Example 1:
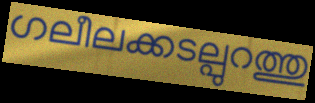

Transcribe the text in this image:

ഗലീലക്കടല്പുറത്തു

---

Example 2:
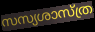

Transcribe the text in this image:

സസ്യശാസ്ത്ര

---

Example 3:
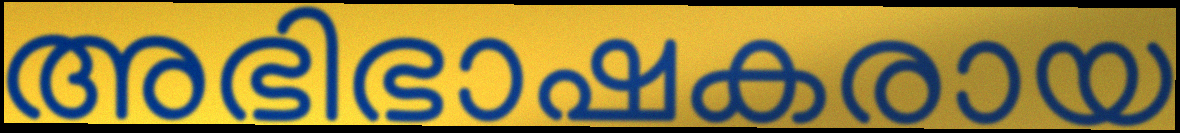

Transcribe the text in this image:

അഭിഭാഷകരായ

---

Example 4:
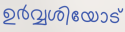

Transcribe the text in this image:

ഉർവ്വശിയോട്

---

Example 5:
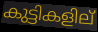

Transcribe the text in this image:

കുട്ടികളില്